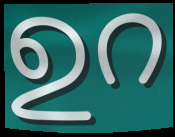
ഉറ